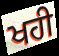
ਖਹੀ